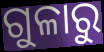
ଗୁଳାରୁ